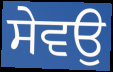
ਸੇਵਉ